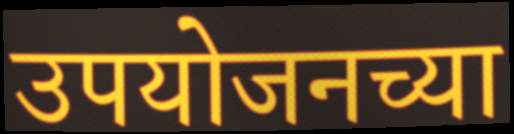
उपयोजनच्या